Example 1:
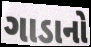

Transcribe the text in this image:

ગાડાનો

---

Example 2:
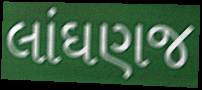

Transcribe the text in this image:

લાંઘણજ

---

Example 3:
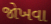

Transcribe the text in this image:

જોખવા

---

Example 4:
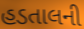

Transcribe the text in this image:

હડતાલની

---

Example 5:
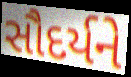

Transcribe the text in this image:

સૌદર્યને